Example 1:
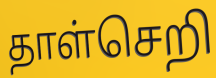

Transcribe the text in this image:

தாள்செறி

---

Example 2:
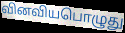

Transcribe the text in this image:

வினவியபொழுது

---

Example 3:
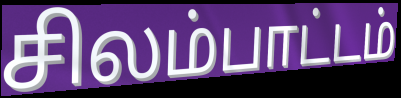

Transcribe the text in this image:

சிலம்பாட்டம்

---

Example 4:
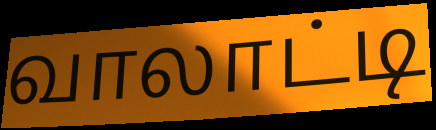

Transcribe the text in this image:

வாலாட்டி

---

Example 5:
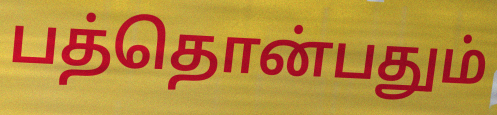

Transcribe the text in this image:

பத்தொன்பதும்